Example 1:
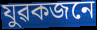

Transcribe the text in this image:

যুৱকজনে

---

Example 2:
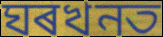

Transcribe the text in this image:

ঘৰখনত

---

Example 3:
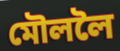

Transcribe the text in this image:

মৌললৈ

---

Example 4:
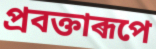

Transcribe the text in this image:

প্ৰবক্তাৰূপে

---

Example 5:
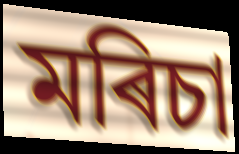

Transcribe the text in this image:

মৰিচা